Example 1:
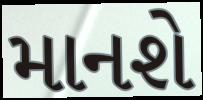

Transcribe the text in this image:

માનશે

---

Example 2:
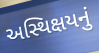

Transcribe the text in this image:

અસ્થિક્ષયનું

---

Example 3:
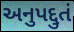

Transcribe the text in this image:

અનુપદ્દુતં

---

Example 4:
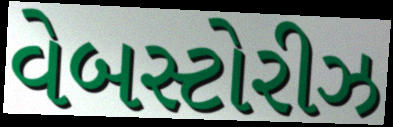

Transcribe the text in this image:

વેબસ્ટોરીઝ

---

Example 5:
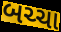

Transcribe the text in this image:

બચ્ચા